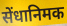
सेंधानिमक